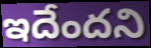
ఇదేందని